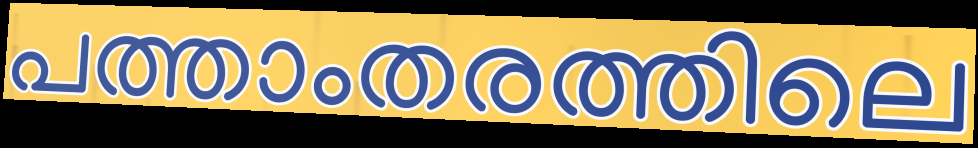
പത്താംതരത്തിലെ